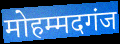
मोहम्मदगंज